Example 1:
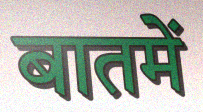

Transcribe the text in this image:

बातमें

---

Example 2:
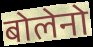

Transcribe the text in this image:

बोलेनो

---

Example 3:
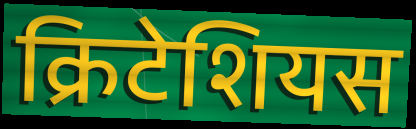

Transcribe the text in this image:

क्रिटेशियस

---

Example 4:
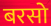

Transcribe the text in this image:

बरसो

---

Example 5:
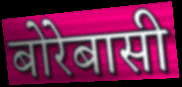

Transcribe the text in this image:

बोरेबासी